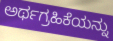
ಅರ್ಥಗ್ರಹಿಕೆಯನ್ನು